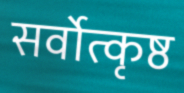
सर्वोत्कृष्ठ